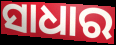
ସାଧାର